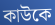
কাউকে